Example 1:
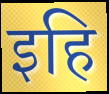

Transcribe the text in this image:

इहि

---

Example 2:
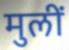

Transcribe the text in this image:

मुलीं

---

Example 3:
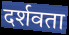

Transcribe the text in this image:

दर्शवता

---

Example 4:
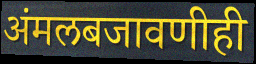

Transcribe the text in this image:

अंमलबजावणीही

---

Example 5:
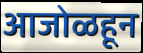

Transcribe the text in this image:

आजोळहून